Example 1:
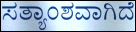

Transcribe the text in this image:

ಸತ್ಯಾಂಶವಾಗಿದೆ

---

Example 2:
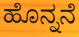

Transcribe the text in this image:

ಹೊನ್ನನೆ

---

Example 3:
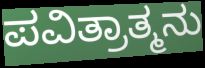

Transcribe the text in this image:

ಪವಿತ್ರಾತ್ಮನು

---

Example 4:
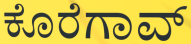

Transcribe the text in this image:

ಕೊರೆಗಾವ್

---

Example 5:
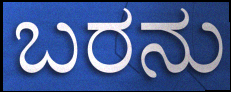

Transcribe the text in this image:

ಬರನು